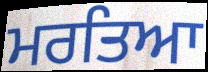
ਮਰਤਿਆ